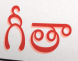
గీతా